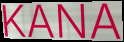
KANA